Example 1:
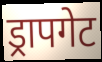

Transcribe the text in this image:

ड्रापगेट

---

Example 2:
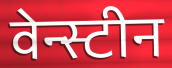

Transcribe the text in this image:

वेन्स्टीन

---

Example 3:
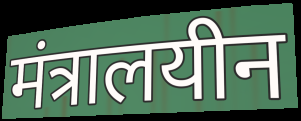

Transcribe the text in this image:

मंत्रालयीन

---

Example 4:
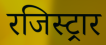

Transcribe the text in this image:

रजिस्ट्रार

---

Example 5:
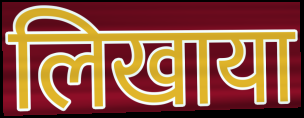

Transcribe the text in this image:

लिखाया